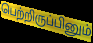
பெற்றிருப்பினும்